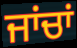
ਜਾਂਚਾਂ